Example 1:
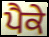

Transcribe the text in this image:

ਪੈਕੇ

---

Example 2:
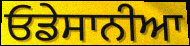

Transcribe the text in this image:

ਓਡੇਸਾਨੀਆ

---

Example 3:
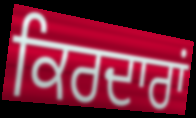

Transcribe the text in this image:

ਕਿਰਦਾਰਾਂ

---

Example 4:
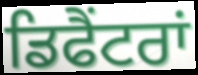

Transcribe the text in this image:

ਡਿਫੈਂਟਰਾਂ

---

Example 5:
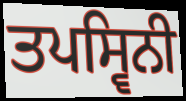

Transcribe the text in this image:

ਤਪਸ੍ਵਿਨੀ